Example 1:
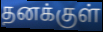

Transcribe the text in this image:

தனக்குள்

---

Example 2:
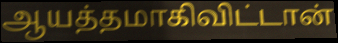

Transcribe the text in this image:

ஆயத்தமாகிவிட்டான்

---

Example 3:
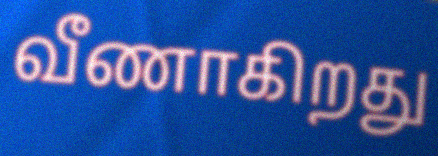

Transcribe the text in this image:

வீணாகிறது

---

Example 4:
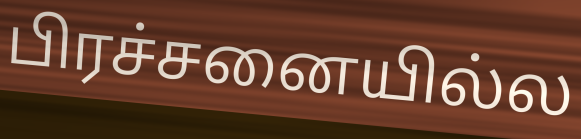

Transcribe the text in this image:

பிரச்சனையில்ல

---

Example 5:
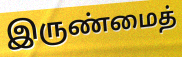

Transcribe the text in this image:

இருண்மைத்